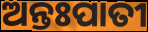
ଅନ୍ତଃପାତୀ